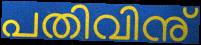
പതിവിനു്